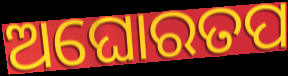
ଅଘୋରତପ